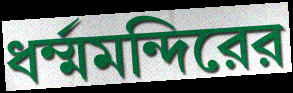
ধর্ম্মমন্দিরের